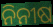
ନିନୀଷ